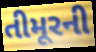
તીમૂરની